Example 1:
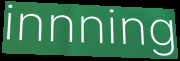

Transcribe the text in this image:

innning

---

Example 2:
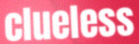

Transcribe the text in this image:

clueless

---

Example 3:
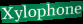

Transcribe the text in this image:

Xylophone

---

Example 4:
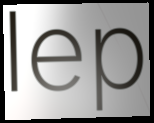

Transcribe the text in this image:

lep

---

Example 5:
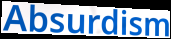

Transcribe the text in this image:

Absurdism